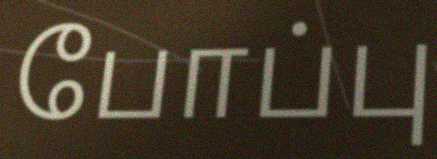
போப்பு